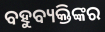
ବହୁବ୍ୟକ୍ତିଙ୍କର